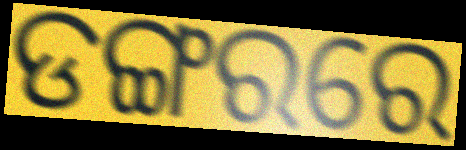
ଡଙ୍ଗରରେ